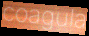
coagula